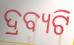
ଦ୍ରବ୍ୟଟି